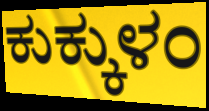
ಕುಕ್ಕುಳಂ